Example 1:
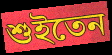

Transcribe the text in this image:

শুইতেন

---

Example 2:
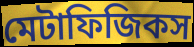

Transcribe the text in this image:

মেটাফিজিকস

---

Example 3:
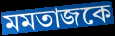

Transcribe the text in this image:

মমতাজকে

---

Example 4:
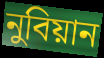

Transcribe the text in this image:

নুবিয়ান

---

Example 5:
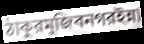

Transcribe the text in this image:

ঠাকুরমুজিবনগরইন্না